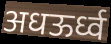
अधऊर्ध्व